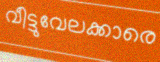
വീട്ടുവേലക്കാരെ